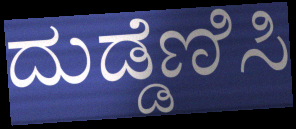
ದುಡ್ಡೆಣಿಸಿ